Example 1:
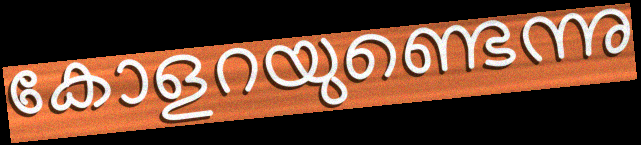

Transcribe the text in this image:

കോളറയുണ്ടെന്നു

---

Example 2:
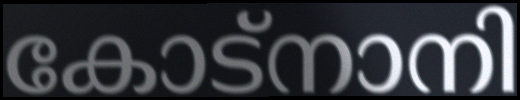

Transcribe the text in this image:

കോട്നാനി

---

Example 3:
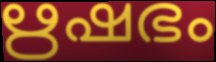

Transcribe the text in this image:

ഋഷഭം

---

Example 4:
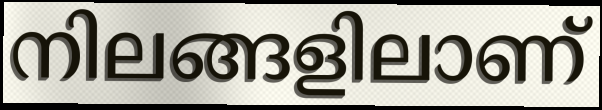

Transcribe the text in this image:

നിലങ്ങളിലാണ്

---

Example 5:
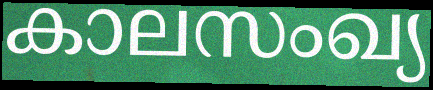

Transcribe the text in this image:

കാലസംഖ്യ